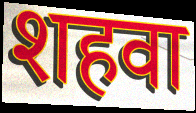
शहवा